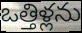
ఒత్తిళ్లను